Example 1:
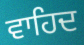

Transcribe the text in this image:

ਵਾਹਿਦ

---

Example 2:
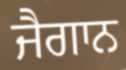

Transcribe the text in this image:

ਜੈਗਾਨ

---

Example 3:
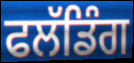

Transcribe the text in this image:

ਫਲੱਡਿੰਗ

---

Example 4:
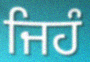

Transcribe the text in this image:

ਜਿਹੰ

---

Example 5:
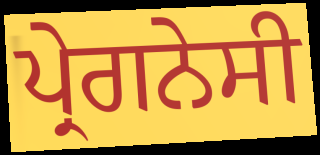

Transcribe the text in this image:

ਪ੍ਰੇਗਨੇਸੀ